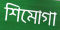
শিমোগা